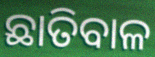
ଛାତିବାଳ